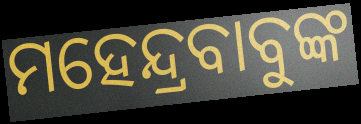
ମହେନ୍ଦ୍ରବାବୁଙ୍କ